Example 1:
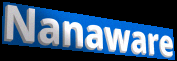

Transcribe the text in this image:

Nanaware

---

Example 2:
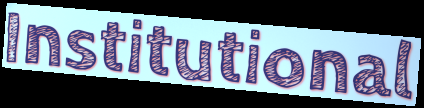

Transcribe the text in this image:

Institutional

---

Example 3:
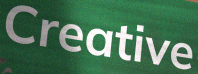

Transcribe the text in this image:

Creative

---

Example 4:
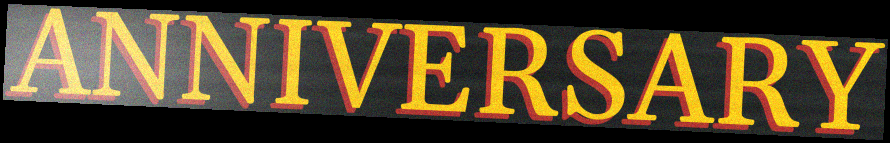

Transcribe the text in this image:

ANNIVERSARY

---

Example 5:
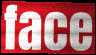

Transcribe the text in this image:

face